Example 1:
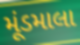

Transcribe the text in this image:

મૂંડમાલા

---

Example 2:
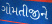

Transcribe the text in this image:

ગોમતીજીને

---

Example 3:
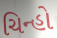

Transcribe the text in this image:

ચિન્હો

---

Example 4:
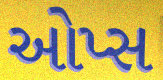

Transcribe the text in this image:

ઓપ્સ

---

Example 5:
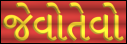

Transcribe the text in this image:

જેવોતેવો